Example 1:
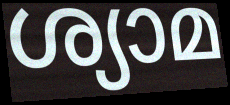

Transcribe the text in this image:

ശ്യാമ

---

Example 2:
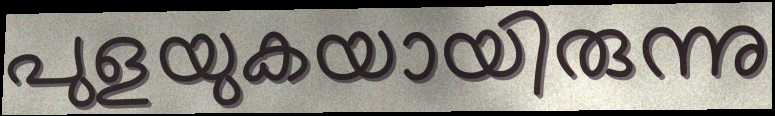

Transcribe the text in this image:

പുളയുകയായിരുന്നു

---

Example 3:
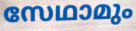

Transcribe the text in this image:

സേഥാമും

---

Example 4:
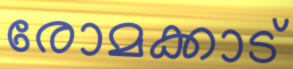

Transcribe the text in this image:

രോമക്കാട്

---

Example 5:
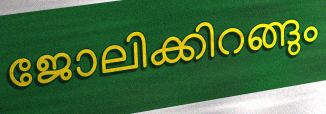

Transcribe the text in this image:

ജോലിക്കിറങ്ങും